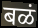
बळं